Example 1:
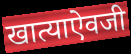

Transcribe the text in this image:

खात्याऐवजी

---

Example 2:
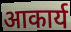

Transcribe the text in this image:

आकार्य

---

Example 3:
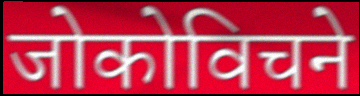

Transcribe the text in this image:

जोकोविचने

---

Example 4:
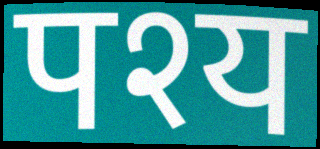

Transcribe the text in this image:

पश्य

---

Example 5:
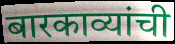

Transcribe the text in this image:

बारकाव्यांची